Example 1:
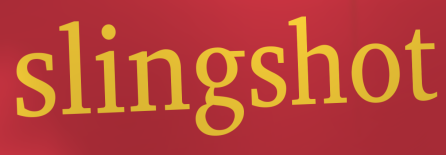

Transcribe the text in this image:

slingshot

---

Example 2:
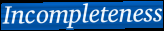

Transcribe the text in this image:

Incompleteness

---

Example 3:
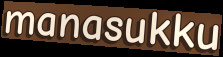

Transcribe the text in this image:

manasukku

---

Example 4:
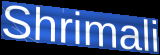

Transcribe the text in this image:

Shrimali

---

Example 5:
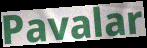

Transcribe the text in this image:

Pavalar